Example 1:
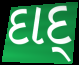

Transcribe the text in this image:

દાદ્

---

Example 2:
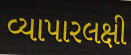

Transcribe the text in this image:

વ્યાપારલક્ષી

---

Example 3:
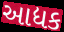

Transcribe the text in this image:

આદ્યક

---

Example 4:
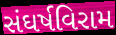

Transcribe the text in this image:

સંઘર્ષવિરામ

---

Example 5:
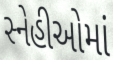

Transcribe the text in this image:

સ્નેહીઓમાં